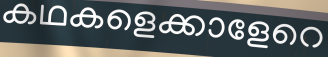
കഥകളെക്കാളേറെ